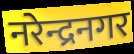
नरेन्द्रनगर